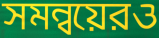
সমন্বয়েরও